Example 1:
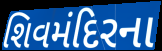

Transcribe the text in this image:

શિવમંદિરના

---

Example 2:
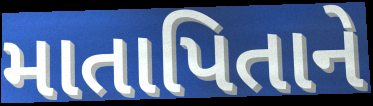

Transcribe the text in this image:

માતાપિતાને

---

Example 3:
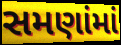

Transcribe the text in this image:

સમણાંમાં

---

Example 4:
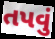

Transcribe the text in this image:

તપવું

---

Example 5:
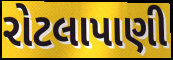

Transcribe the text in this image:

રોટલાપાણી